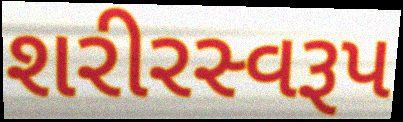
શરીરસ્વરૂપ